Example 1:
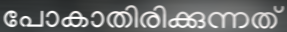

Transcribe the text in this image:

പോകാതിരിക്കുന്നത്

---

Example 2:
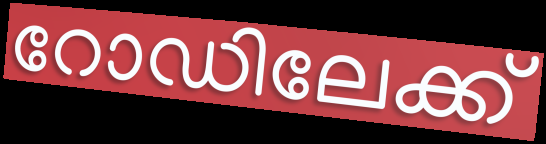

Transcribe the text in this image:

റോഡിലേക്ക്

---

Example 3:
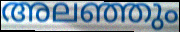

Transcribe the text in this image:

അലഞ്ഞും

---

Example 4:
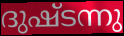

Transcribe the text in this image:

ദുഷ്ടന്നു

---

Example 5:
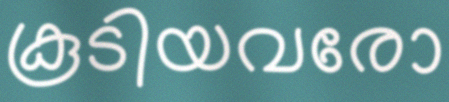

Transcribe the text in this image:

കൂടിയവരോ